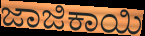
ಜಾಜಿಕಾಯಿ